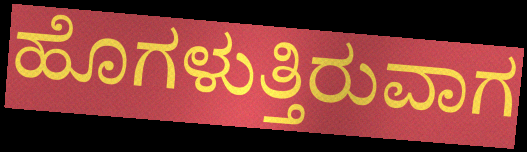
ಹೊಗಳುತ್ತಿರುವಾಗ